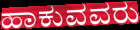
ಹಾಕುವವರು